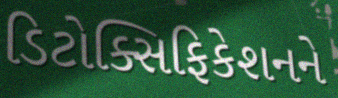
ડિટોક્સિફિકેશનને